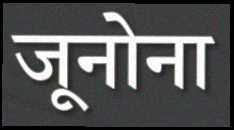
जूनोना